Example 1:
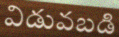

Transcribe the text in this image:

విడువబడి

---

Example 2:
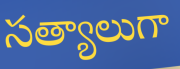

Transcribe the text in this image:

సత్యాలుగా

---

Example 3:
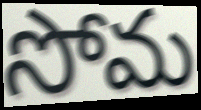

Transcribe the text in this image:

సోమ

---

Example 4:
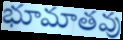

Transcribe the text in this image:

భూమాతవు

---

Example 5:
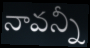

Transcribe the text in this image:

నావన్నీ